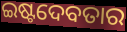
ଇଷ୍ଟଦେବତାର